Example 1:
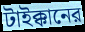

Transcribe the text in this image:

টাইক্কানের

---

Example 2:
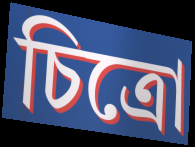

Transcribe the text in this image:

চিত্রো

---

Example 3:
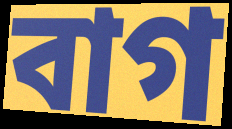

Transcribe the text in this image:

বাগ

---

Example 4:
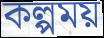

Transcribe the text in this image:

কল্পময়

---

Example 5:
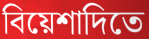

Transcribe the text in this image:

বিয়েশাদিতে